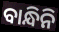
ବାନ୍ଧିନି